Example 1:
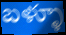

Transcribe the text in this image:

బళ్ళూ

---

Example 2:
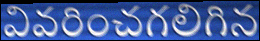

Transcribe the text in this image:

వివరించగలిగిన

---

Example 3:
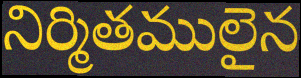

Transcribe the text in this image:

నిర్మితములైన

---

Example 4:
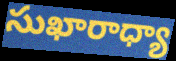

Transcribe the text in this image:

సుఖారాధ్యా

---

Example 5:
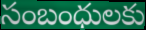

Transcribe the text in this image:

సంబంధులకు